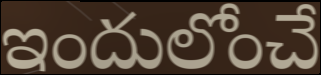
ఇందులోంచే